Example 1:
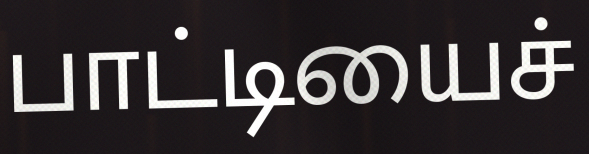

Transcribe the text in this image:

பாட்டியைச்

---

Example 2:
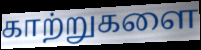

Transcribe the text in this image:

காற்றுகளை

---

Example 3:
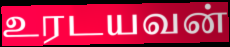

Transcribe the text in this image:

உரடயவன்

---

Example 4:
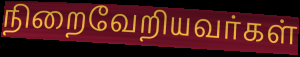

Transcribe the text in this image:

நிறைவேறியவர்கள்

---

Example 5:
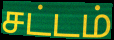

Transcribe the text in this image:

சட்டம்